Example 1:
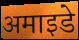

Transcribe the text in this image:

अमाइडे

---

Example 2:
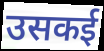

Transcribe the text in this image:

उसकई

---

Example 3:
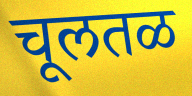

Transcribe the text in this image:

चूलतळ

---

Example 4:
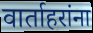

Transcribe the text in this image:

वार्ताहरांना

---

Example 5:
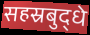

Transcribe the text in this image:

सहस्रबुद्धे